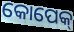
କୋପେକ୍